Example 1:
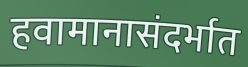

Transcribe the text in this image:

हवामानासंदर्भात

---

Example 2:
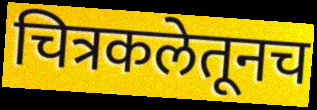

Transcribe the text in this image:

चित्रकलेतूनच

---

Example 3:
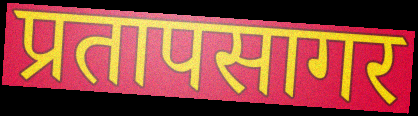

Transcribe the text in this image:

प्रतापसागर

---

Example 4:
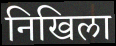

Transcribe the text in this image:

निखिला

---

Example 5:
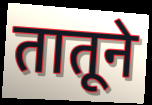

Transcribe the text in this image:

तातूने